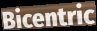
Bicentric